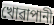
খোৱাপানী